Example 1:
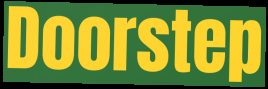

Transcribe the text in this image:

Doorstep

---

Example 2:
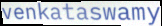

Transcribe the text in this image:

venkataswamy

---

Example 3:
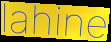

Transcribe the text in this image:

lahine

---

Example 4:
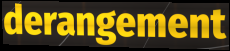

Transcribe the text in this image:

derangement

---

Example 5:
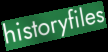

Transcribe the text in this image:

historyfiles